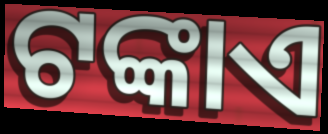
ଟଙ୍କାଏ